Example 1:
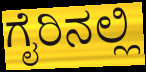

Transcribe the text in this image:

ಗೈರಿನಲ್ಲಿ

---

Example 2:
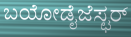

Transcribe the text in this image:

ಬಯೋಡೈಜೆಸ್ಟರ್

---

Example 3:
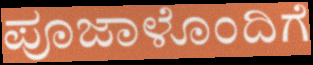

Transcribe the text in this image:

ಪೂಜಾಳೊಂದಿಗೆ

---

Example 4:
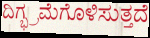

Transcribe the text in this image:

ದಿಗ್ಭ್ರಮೆಗೊಳಿಸುತ್ತದೆ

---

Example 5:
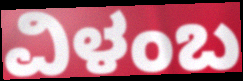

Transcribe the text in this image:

ವಿಳಂಬ